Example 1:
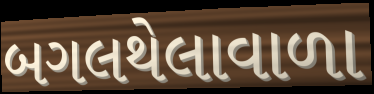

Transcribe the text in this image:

બગલથેલાવાળા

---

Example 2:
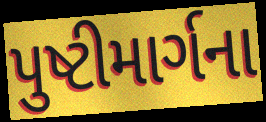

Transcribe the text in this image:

પુષ્ટીમાર્ગના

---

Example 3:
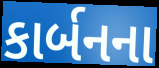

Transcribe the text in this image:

કાર્બનના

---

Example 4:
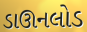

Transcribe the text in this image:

ડાઊનલોડ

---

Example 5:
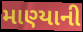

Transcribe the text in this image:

માણ્યાની